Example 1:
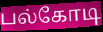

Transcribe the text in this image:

பல்கோடி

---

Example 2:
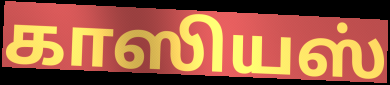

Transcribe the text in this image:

காஸியஸ்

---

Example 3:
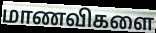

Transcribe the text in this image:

மாணவிகளை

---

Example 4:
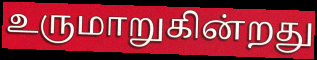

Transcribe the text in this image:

உருமாறுகின்றது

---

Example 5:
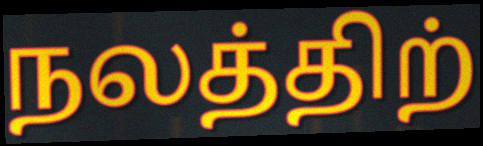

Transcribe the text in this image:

நலத்திற்